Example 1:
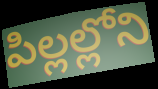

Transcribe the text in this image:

పిల్లల్లోని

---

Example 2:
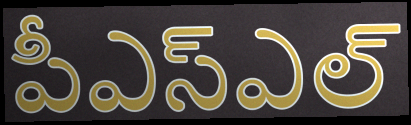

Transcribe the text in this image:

పీఎస్ఎల్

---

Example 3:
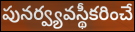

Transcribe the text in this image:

పునర్వ్యవస్థీకరించే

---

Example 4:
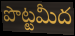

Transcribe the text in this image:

పొట్టమీద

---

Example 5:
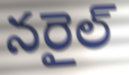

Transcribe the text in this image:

నరైల్